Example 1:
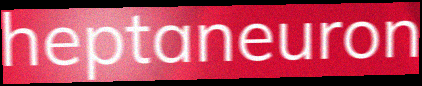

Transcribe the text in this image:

heptaneuron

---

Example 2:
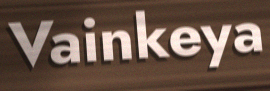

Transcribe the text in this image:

Vainkeya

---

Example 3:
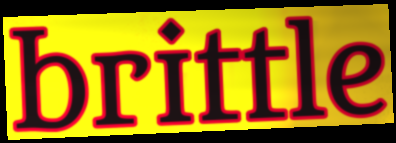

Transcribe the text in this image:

brittle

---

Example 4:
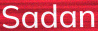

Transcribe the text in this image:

Sadan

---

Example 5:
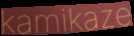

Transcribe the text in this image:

kamikaze